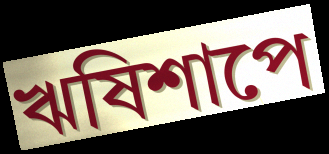
ঋষিশাপে